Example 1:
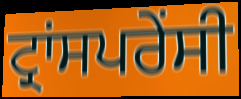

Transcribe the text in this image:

ਟ੍ਰਾਂਸਪਰੇਂਸੀ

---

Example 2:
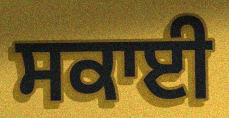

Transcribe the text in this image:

ਸਕਾਈ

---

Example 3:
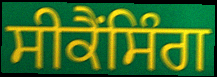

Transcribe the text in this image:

ਸੀਕੈਂਸਿੰਗ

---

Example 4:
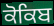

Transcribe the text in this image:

ਕੋਕਿਬ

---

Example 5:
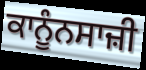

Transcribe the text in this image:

ਕਾਨੂੰਨਸਾਜ਼ੀ